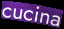
cucina